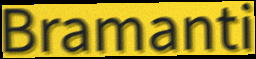
Bramanti